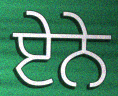
ਏੇਨੇ